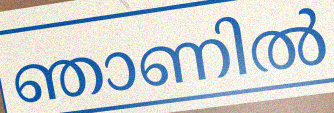
ഞാണിൽ